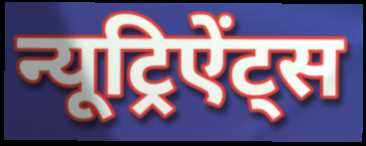
न्यूट्रिऐंट्स